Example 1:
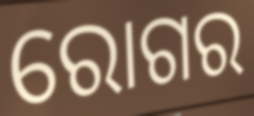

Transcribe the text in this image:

ରୋଗର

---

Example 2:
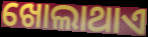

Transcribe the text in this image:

ଖୋଲାଥାଏ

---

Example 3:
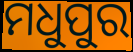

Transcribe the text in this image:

ମଧୁପୁର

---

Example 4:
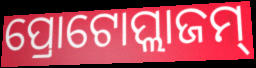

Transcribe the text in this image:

ପ୍ରୋଟୋପ୍ଲାଜମ୍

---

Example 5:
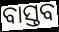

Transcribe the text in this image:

ବାସ୍ତବ